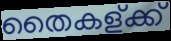
തൈകള്ക്ക്